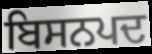
ਬਿਸਨਪਦ